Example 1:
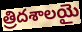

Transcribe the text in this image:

త్రిదశాలయై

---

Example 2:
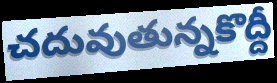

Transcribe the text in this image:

చదువుతున్నకొద్దీ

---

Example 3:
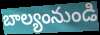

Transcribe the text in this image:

బాల్యంనుండి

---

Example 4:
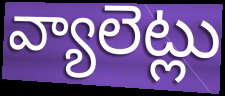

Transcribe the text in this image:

వ్యాలెట్లు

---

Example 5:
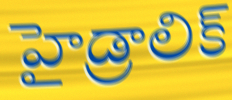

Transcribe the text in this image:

హైడ్రాలిక్